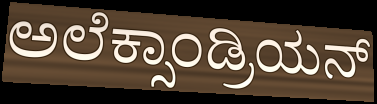
ಅಲೆಕ್ಸಾಂಡ್ರಿಯನ್